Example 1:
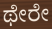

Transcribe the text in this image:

ಥೇರೇ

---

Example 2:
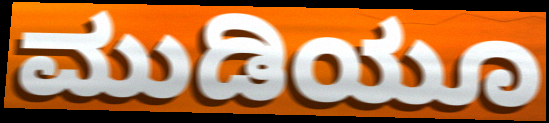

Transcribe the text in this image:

ಮುಡಿಯೂ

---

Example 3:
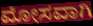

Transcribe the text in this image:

ಮೋಸವಾಗಿ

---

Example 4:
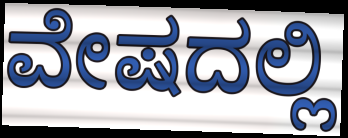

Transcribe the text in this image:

ವೇಷದಲ್ಲಿ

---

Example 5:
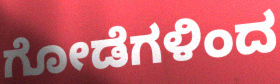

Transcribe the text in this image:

ಗೋಡೆಗಳಿಂದ